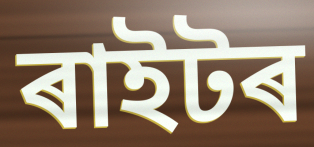
ৰাইটৰ